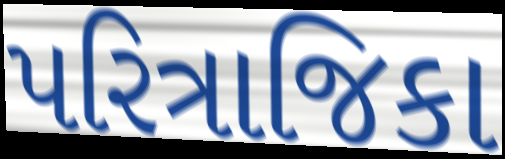
પરિત્રાજિકા